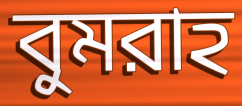
বুমরাহ